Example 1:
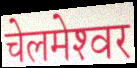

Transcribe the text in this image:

चेलमेश्‍वर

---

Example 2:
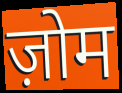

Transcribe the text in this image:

ज़ोम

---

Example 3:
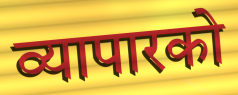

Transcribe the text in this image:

व्यापारको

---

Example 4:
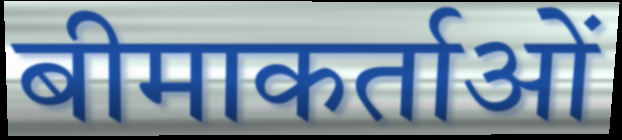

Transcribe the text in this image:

बीमाकर्ताओं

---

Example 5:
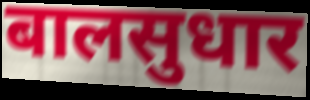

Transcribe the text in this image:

बालसुधार